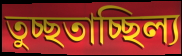
তুচ্ছতাচ্ছিল্য